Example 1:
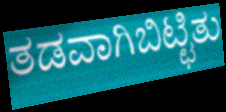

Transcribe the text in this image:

ತಡವಾಗಿಬಿಟ್ಟಿತು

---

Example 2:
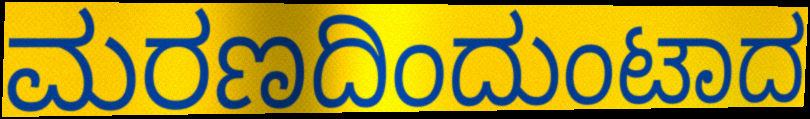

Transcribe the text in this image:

ಮರಣದಿಂದುಂಟಾದ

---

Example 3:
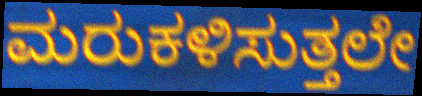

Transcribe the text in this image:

ಮರುಕಳಿಸುತ್ತಲೇ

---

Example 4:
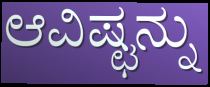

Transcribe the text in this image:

ಆವಿಷ್ಟನ್ನು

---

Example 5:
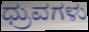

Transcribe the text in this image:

ಧ್ರುವಗಳು